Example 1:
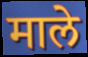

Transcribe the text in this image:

माले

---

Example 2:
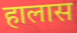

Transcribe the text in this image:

हालास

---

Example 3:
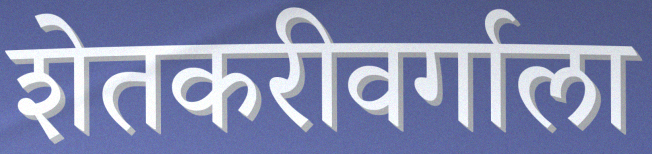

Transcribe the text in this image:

शेतकरीवर्गाला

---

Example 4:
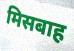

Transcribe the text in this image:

मिसबाह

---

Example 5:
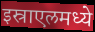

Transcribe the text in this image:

इस्राएलमध्ये